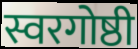
स्वरगोष्ठी